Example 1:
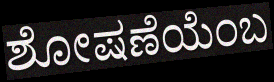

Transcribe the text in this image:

ಶೋಷಣೆಯೆಂಬ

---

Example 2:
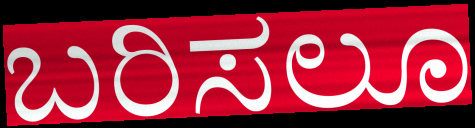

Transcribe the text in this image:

ಬರಿಸಲೂ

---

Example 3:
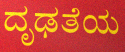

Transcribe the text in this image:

ದೃಢತೆಯ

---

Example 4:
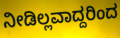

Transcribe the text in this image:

ನೀಡಿಲ್ಲವಾದ್ದರಿಂದ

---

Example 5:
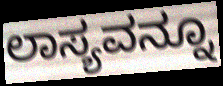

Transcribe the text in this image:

ಲಾಸ್ಯವನ್ನೂ